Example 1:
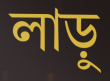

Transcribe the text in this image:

লাড়ু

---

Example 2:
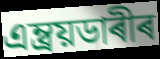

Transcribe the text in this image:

এম্ব্ৰয়ডাৰীৰ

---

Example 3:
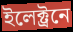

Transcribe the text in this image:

ইলেক্ট্ৰনে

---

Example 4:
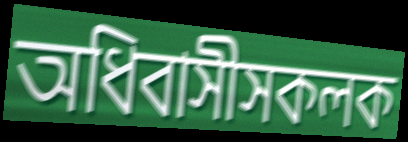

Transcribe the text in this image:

অধিবাসীসকলক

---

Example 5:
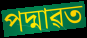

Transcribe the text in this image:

পদ্মাৱত